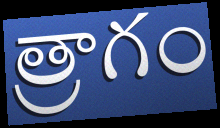
త్రాగం